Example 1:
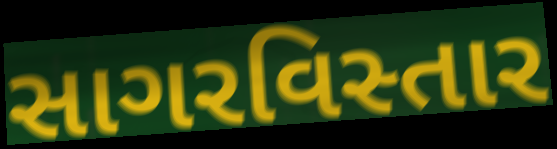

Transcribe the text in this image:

સાગરવિસ્તાર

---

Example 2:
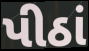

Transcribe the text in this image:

પીઠાં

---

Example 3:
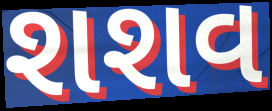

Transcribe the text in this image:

શશવ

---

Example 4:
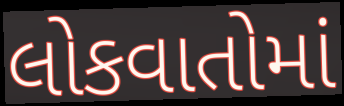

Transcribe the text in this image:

લોકવાતોમાં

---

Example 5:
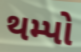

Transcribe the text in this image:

થમ્પો